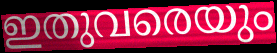
ഇതുവരെയും